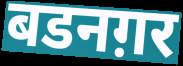
बडनग़र